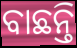
ବାଛନ୍ତି